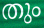
തും